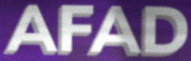
AFAD